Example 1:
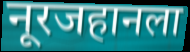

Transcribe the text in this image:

नूरजहानला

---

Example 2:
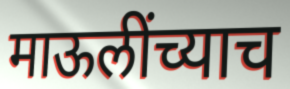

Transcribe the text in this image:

माऊलींच्याच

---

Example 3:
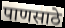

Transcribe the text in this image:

पाणसाठे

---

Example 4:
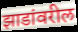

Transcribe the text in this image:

झाडांवरील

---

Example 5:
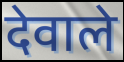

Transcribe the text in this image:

देवाले